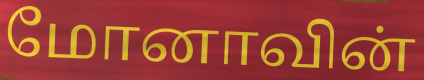
மோனாவின்